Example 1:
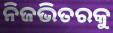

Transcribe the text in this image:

ନିଜଭିତରକୁ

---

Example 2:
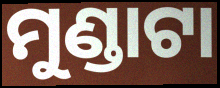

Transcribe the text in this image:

ମୁଣ୍ଡାଟା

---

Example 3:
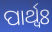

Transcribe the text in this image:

ପାର୍ଥ୍ବଃ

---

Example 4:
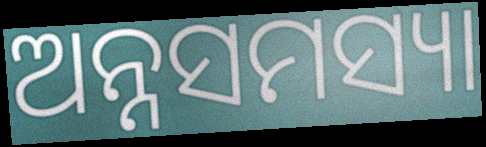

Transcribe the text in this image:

ଅନ୍ନସମସ୍ୟା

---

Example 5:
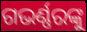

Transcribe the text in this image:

ଗଭର୍ଣ୍ଣରଙ୍କୁ